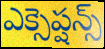
ఎక్సెప్షన్స్